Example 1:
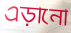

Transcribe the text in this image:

এড়ানো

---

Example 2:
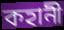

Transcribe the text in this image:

কহানী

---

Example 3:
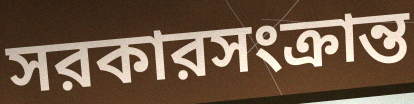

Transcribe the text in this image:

সরকারসংক্রান্ত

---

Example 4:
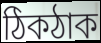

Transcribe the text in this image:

ঠিকঠাক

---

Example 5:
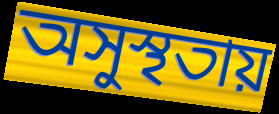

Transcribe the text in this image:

অসুস্থতায়